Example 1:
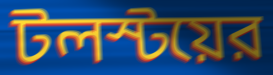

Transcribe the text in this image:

টলস্টয়ের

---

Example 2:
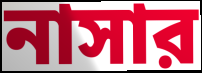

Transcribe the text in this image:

নাসার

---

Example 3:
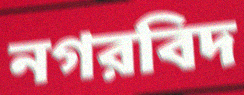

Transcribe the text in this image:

নগরবিদ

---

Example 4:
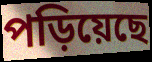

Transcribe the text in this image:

পড়িয়েছে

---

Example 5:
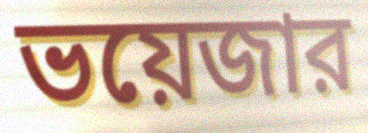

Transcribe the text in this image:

ভয়েজার